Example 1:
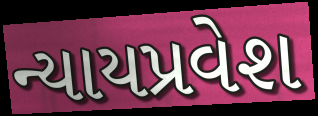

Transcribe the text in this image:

ન્યાયપ્રવેશ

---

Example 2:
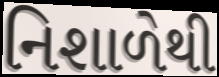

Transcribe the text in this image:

નિશાળેથી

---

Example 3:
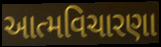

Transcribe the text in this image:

આત્મવિચારણા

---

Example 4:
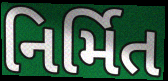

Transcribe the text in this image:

નિર્મિત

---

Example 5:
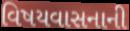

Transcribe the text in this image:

વિષયવાસનાની